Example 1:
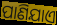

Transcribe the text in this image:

ପାଣିଯାଏ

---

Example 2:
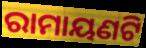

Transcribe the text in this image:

ରାମାୟଣଟି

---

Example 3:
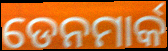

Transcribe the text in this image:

ଡେନମାର୍କ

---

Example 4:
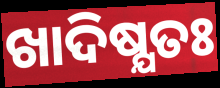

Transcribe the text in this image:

ଖାଦିଷ୍ଯତଃ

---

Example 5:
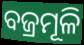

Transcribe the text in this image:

ବଜ୍ରମୂଳି